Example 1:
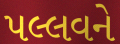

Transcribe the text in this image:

પલ્લવને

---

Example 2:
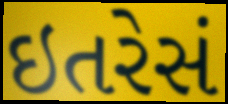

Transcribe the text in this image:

ઇતરેસં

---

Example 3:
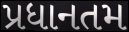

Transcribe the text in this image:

પ્રધાનતમ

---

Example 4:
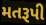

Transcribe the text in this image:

મતરૂપી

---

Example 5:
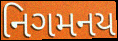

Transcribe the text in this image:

નિગમનય